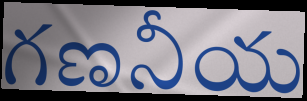
గణనీయ